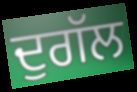
ਦੁਗੱਲ